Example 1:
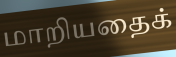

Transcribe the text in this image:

மாறியதைக்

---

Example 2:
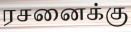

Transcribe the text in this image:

ரசனைக்கு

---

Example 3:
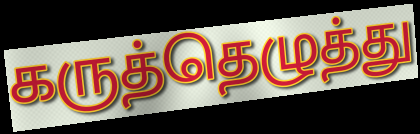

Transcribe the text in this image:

கருத்தெழுத்து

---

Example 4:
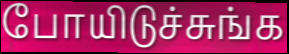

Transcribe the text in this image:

போயிடுச்சுங்க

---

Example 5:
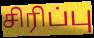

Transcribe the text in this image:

சிரிப்பு